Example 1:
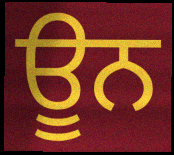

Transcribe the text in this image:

ਊਨ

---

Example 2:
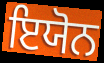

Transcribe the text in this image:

ਇਯੋਨ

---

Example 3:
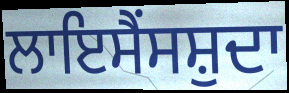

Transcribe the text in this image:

ਲਾਇਸੈਂਸਸ਼ੁਦਾ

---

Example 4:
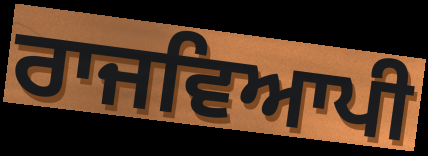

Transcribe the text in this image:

ਰਾਜਵਿਆਪੀ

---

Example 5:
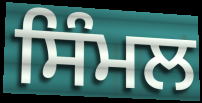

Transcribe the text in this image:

ਸਿੰਮਲ